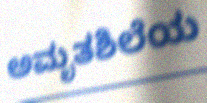
ಅಮೃತಶಿಲೆಯ